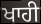
ਖਾਹੀ